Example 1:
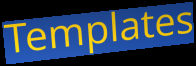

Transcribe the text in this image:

Templates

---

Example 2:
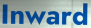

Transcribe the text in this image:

Inward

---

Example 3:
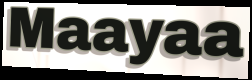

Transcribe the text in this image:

Maayaa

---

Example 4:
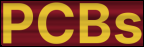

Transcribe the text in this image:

PCBs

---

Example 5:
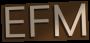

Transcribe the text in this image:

EFM